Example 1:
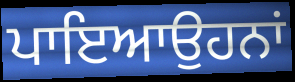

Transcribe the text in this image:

ਪਾਇਆਉਹਨਾਂ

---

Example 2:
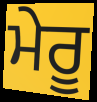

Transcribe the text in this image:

ਮੇਰੂ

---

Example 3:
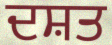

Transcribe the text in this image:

ਦਸ਼ਤ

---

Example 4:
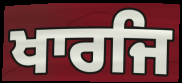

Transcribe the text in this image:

ਖਾਰਜਿ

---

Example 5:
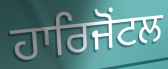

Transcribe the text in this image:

ਹਾਰਿਜੋਂਟਲ